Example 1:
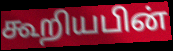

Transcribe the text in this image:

கூறியபின்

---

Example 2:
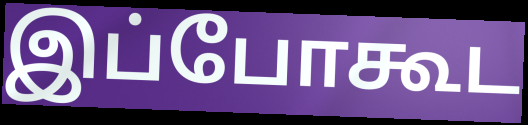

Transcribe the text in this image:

இப்போகூட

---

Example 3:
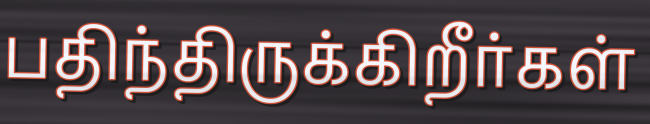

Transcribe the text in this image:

பதிந்திருக்கிறீர்கள்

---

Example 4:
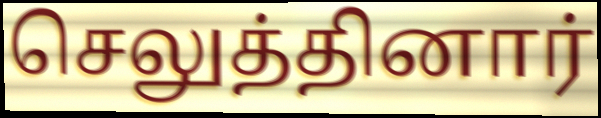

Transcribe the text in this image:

செலுத்தினார்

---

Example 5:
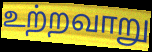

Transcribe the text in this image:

உற்றவாறு